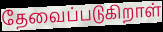
தேவைப்படுகிறாள்